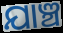
ଯାଞ୍ଚ